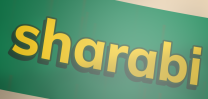
sharabi